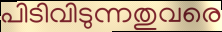
പിടിവിടുന്നതുവരെ